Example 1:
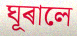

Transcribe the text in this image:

ঘূৰালে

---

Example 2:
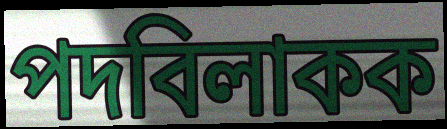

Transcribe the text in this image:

পদবিলাকক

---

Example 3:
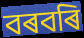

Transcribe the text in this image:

বৰবৰি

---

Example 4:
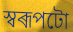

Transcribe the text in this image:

স্বৰূপটো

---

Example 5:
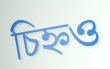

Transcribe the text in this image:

চিহ্নও